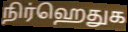
நிர்ஹெதுக